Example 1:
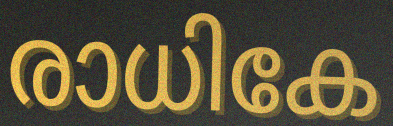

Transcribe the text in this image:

രാധികേ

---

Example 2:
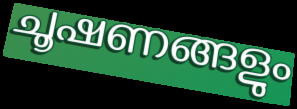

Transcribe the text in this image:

ചൂഷണങ്ങളും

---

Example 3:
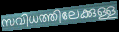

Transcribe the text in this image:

സവിധത്തിലേക്കുള്ള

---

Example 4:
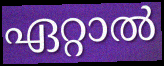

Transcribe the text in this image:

ഏറ്റാൽ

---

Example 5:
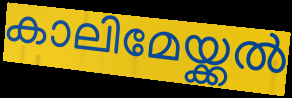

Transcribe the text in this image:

കാലിമേയ്ക്കൽ